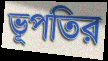
ভূপতির